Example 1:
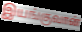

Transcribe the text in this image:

இயங்குவான்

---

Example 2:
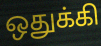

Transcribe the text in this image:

ஒதுக்கி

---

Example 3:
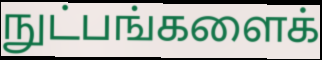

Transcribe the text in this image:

நுட்பங்களைக்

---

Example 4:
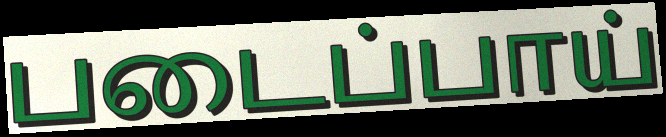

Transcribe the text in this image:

படைப்பாய்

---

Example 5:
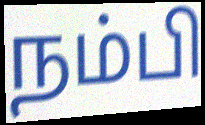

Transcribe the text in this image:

நம்பி